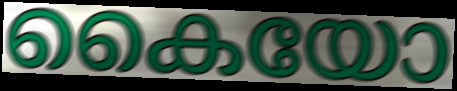
കൈയോ